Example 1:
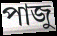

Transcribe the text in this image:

পাজু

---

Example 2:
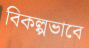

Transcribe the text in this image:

বিকল্পভাবে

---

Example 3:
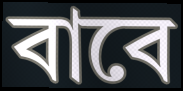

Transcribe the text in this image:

বাবে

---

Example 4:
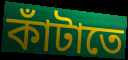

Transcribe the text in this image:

কাঁটাতে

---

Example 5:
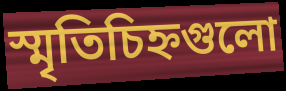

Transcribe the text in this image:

স্মৃতিচিহ্নগুলো